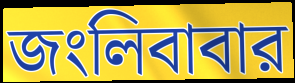
জংলিবাবার